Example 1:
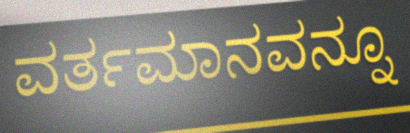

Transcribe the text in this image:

ವರ್ತಮಾನವನ್ನೂ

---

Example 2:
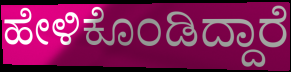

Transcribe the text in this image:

ಹೇಳಿಕೊಂಡಿದ್ದಾರೆ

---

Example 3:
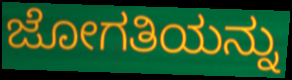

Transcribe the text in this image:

ಜೋಗತಿಯನ್ನು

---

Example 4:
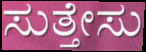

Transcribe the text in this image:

ಸುತ್ತೇಸು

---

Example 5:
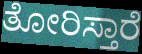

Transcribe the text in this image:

ತೋರಿಸ್ತಾರೆ